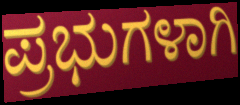
ಪ್ರಭುಗಳಾಗಿ